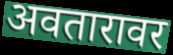
अवतारावर